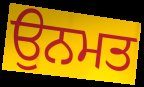
ਉਨਮਤ